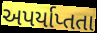
અપર્યાપ્તતા